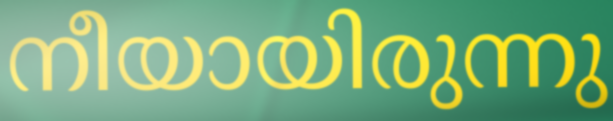
നീയായിരുന്നു